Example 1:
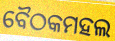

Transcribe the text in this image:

ବୈଠକମହଲ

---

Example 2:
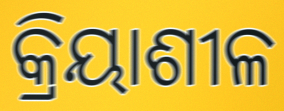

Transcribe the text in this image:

କ୍ରିୟାଶୀଳ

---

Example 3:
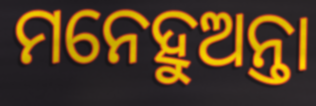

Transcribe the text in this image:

ମନେହୁଅନ୍ତା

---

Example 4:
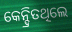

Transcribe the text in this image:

କେନ୍ଦ୍ରିତଥିଲେ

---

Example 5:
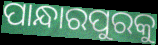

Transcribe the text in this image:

ପାନ୍ଧାରପୁରକୁ